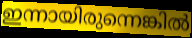
ഇന്നായിരുന്നെങ്കിൽ